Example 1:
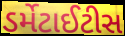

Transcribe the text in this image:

ડર્મેટાઈટીસ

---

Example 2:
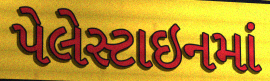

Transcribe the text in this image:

પેલેસ્ટાઇનમાં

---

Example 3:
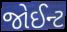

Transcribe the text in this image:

જોઈન્ટ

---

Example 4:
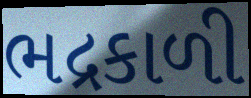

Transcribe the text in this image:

ભદ્રકાળી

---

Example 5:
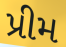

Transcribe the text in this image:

પ્રીમ